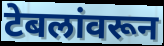
टेबलांवरून